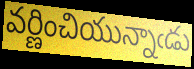
వర్ణించియున్నాఁడు